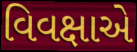
વિવક્ષાએ